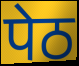
पेठ